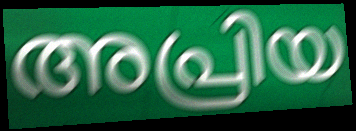
അപ്രിയ